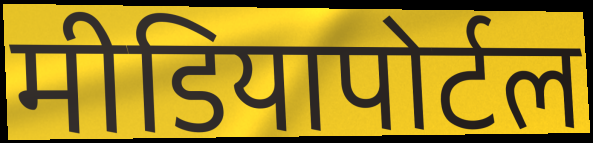
मीडियापोर्टल